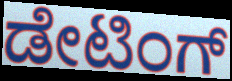
ಡೇಟಿಂಗ್